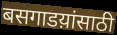
बसगाडय़ांसाठी